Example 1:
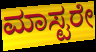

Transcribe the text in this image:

ಮಾಸ್ಟರೇ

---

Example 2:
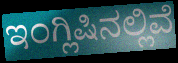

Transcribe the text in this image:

ಇಂಗ್ಲಿಷಿನಲ್ಲಿವೆ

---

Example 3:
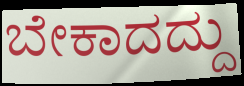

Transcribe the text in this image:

ಬೇಕಾದದ್ದು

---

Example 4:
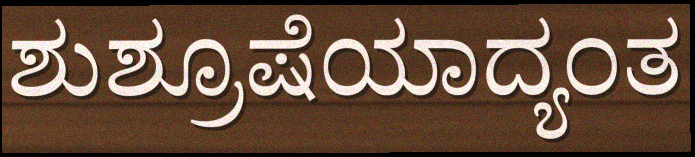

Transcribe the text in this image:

ಶುಶ್ರೂಷೆಯಾದ್ಯಂತ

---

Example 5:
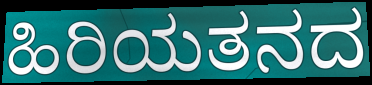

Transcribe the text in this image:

ಹಿರಿಯತನದ